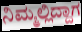
ನಿಮ್ಮಲ್ಲಿದ್ದಾಗ